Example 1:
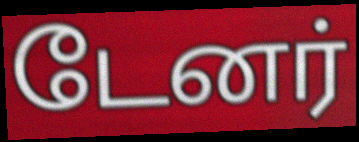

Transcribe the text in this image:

டேனர்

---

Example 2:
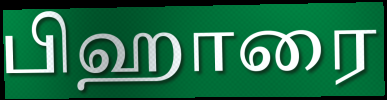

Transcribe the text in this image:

பிஹாரை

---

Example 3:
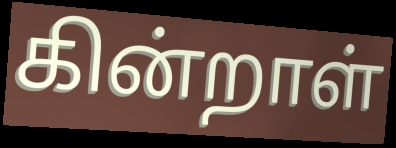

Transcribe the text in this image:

கின்றாள்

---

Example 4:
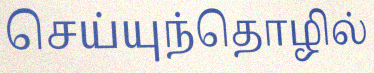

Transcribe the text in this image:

செய்யுந்தொழில்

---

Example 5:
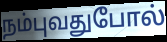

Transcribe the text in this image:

நம்புவதுபோல்